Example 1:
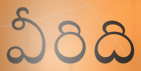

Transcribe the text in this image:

వీరిది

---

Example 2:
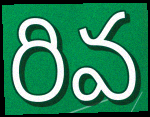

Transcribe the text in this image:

రివ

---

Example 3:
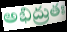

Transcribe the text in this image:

అభిద్రుతః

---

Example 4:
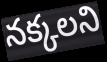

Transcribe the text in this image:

నక్కలని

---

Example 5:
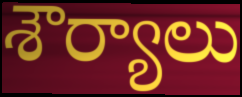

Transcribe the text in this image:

శౌర్యాలు